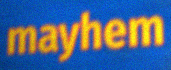
mayhem